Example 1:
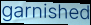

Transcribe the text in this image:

garnished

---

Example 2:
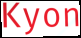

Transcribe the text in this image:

Kyon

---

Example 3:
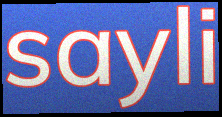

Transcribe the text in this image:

sayli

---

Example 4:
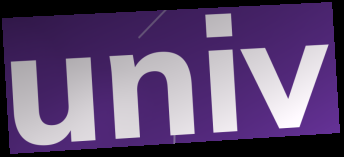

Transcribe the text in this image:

univ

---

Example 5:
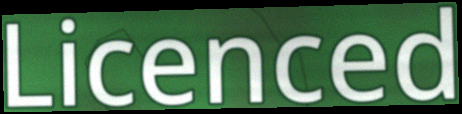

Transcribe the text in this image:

Licenced